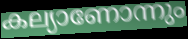
കല്യാണോന്നും